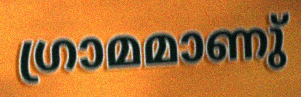
ഗ്രാമമാണു്